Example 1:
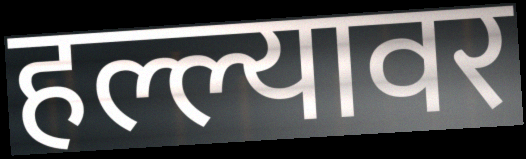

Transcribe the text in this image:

हल्ल्यावर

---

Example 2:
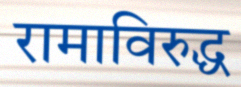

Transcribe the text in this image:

रामाविरुद्ध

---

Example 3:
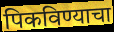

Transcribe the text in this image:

पिकविण्याचा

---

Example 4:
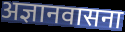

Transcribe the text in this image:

अज्ञानवासना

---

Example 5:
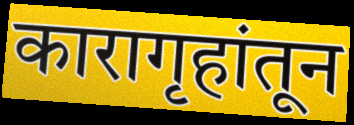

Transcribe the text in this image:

कारागृहांतून